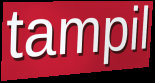
tampil